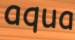
aqua